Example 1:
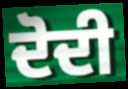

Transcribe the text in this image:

ਦੋਦੀ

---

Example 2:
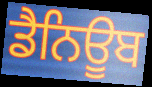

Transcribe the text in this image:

ਡੈਨਿਊਬ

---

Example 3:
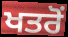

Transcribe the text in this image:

ਖਤਰੋਂ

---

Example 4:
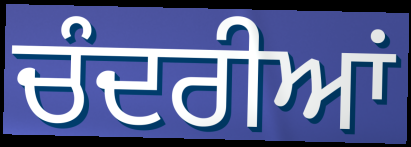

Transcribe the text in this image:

ਚੰਦਰੀਆਂ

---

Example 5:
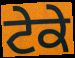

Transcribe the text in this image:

ਟੇਕੇ